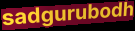
sadgurubodh